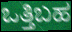
ಒತ್ತಿಬಹ